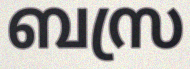
ബസ്ര